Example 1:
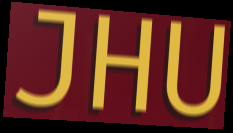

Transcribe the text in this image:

JHU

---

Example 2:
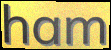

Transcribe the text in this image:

ham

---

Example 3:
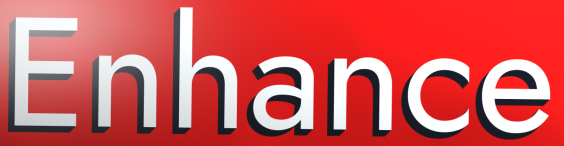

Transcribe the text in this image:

Enhance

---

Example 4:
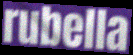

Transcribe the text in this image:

rubella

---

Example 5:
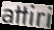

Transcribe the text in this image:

attiri